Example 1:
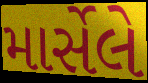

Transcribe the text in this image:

માર્સેલે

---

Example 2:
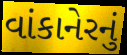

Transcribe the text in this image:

વાંકાનેરનું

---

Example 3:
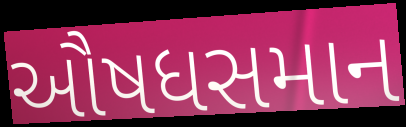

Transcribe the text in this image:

ઔષધસમાન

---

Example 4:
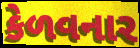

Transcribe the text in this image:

કેળવનાર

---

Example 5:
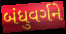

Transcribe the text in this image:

બંધુવર્ગને